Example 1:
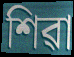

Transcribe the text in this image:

শিৱা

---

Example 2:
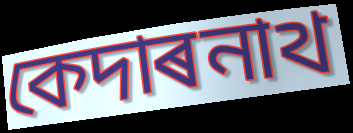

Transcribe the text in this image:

কেদাৰনাথ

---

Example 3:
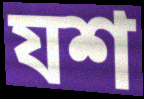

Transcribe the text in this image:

যশ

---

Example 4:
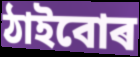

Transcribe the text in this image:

ঠাইবোৰ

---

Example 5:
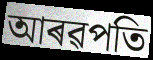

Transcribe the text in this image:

আৰৱপতি